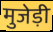
मुजेड़ी